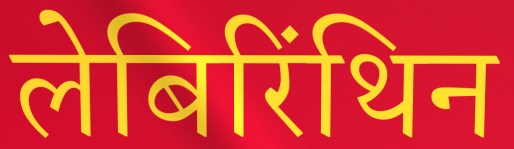
लेबिरिंथिन